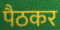
पैठकर